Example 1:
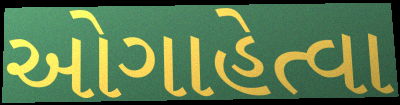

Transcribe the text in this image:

ઓગાહેત્વા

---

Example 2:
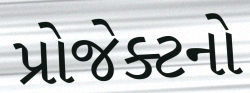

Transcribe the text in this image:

પ્રોજેક્ટનો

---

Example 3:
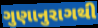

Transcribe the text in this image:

ગુણાનુરાગથી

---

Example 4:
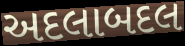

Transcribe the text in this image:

અદલાબદલ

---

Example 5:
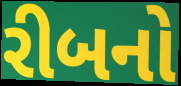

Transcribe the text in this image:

રીબનો